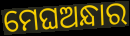
ମେଘଅନ୍ଧାର